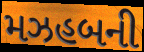
મઝહબની